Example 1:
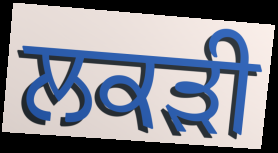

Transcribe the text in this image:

ਲਕੜੀ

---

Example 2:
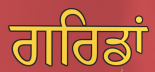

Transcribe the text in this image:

ਗਰਿਡਾਂ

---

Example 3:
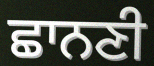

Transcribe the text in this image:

ਛਾਨਣੀ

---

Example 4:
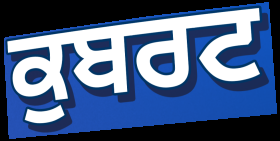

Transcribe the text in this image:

ਕੁਬਰਟ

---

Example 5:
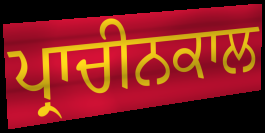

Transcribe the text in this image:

ਪ੍ਰਾਚੀਨਕਾਲ